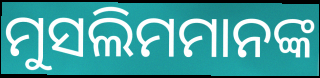
ମୁସଲିମମାନଙ୍କ